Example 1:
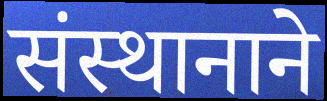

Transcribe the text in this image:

संस्थानाने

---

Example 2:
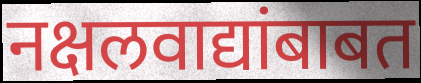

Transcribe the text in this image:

नक्षलवाद्यांबाबत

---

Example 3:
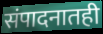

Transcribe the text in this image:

संपादनातही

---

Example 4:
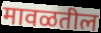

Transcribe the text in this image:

मावळतील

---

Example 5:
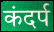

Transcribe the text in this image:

कंदर्प